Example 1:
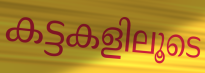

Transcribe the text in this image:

കട്ടകളിലൂടെ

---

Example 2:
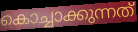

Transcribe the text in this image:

കൊച്ചാക്കുന്നത്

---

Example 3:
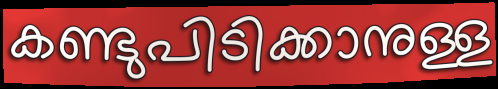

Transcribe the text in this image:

കണ്ടുപിടിക്കാനുള്ള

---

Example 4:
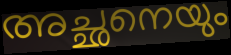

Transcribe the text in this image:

അച്ഛനെയും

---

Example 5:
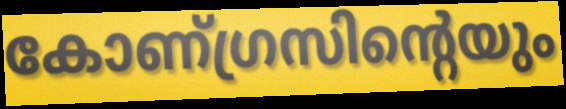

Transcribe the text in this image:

കോണ്ഗ്രസിന്റെയും